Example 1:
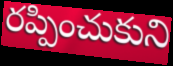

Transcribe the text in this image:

రప్పించుకుని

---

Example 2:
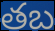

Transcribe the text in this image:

తబ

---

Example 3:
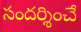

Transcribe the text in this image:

సందర్శించే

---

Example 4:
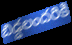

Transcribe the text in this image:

బిడ్డలందరికి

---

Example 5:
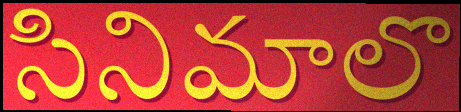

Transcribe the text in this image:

సినిమాలొ